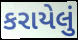
કરાયેલું